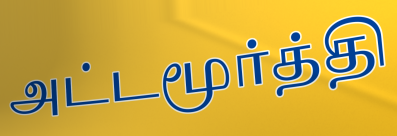
அட்டமூர்த்தி